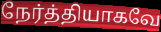
நேர்த்தியாகவே